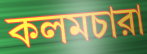
কলমচারা